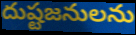
దుష్టజనులను